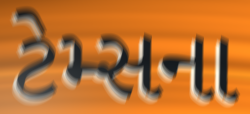
ટેમ્સના